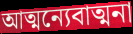
আত্মন্যেবাত্মনা